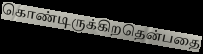
கொண்டிருக்கிறதென்பதை